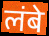
लंबे